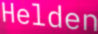
Helden